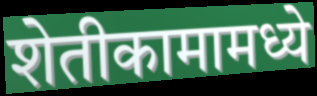
शेतीकामामध्ये